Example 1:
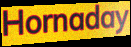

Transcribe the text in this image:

Hornaday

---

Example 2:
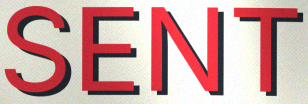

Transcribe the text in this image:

SENT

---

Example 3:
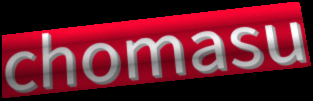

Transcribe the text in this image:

chomasu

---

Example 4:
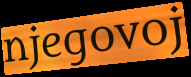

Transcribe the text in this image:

njegovoj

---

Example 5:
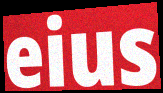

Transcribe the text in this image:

eius